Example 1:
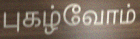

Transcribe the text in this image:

புகழ்வோம்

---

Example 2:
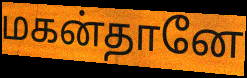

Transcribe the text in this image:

மகன்தானே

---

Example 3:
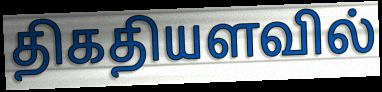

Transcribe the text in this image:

திகதியளவில்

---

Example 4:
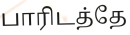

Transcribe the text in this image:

பாரிடத்தே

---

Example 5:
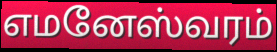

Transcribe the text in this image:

எமனேஸ்வரம்